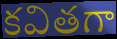
కవితగా